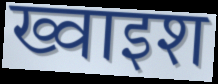
ख्वाइश